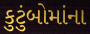
કુટુંબોમાંના